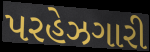
પરહેઝગારી